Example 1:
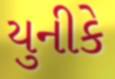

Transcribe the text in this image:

યુનીકે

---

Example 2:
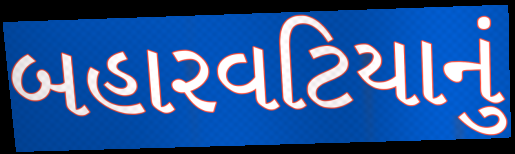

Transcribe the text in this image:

બહારવટિયાનું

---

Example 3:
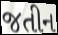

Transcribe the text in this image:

જતીન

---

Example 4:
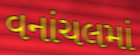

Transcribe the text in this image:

વનાંચલમાં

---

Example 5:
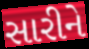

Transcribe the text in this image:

સારીને